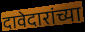
दावेदारांच्या